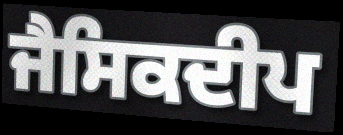
ਜੈਸਿਕਦੀਪ